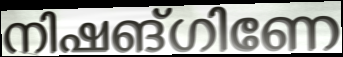
നിഷങ്ഗിണേ